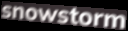
snowstorm